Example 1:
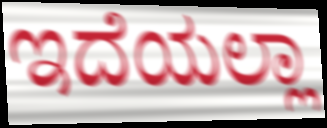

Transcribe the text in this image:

ಇದೆಯಲ್ಲಾ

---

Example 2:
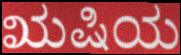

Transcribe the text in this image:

ಋಷಿಯ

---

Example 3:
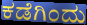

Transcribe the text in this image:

ಕಡೆಗಿಂದು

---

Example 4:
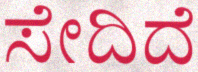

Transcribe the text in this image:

ಸೇದಿದೆ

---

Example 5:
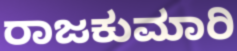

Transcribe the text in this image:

ರಾಜಕುಮಾರಿ